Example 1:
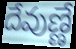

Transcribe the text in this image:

దేవుణ్ణే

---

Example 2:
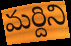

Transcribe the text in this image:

మర్దిని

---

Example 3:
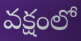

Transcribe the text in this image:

వక్షంలో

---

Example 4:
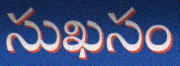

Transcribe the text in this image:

సుఖసం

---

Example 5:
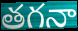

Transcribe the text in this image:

తగనా